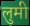
लुमी